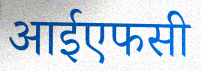
आईएफसी